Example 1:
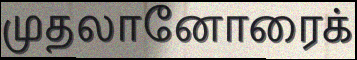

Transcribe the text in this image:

முதலானோரைக்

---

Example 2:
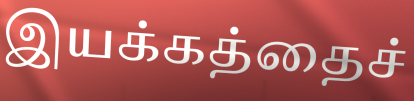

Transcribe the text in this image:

இயக்கத்தைச்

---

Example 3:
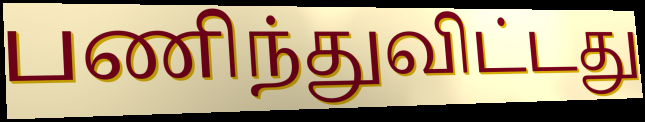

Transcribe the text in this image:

பணிந்துவிட்டது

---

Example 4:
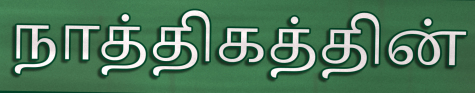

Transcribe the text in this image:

நாத்திகத்தின்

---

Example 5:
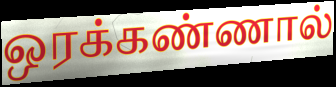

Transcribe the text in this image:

ஒரக்கண்ணால்